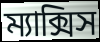
ম্যাক্সিস